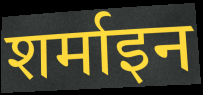
शर्माइन